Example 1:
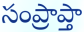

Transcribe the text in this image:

సంప్రాప్తా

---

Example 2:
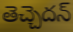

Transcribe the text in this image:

తెచ్చెదన్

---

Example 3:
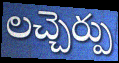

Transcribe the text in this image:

లచ్చెర్పు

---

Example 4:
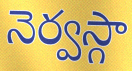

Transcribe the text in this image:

నెర్వస్గా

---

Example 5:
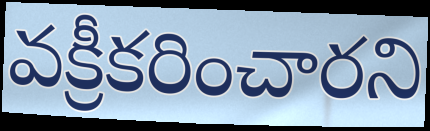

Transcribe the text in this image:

వక్రీకరించారని